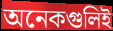
অনেকগুলিই